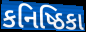
કનિષ્ઠિકા